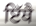
ਇੱਥੈ